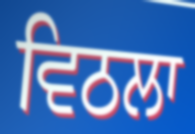
ਵਿਠਲਾ